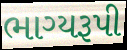
ભાગ્યરૂપી